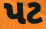
પટ